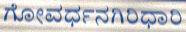
ಗೋವರ್ಧನಗಿರಿಧಾರಿ